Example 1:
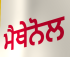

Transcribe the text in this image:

ਮੈਥੇਨੋਲ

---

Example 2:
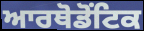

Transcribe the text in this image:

ਆਰਥੋਡੋਂਟਿਕ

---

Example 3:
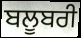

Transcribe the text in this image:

ਬਲੂਬਰੀ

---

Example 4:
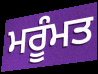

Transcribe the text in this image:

ਮਰੂੰਮਤ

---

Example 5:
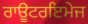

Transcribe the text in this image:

ਰਾਊਟਰਇਮੇਜ